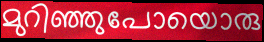
മുറിഞ്ഞുപോയൊരു